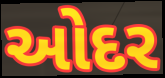
ઓદર